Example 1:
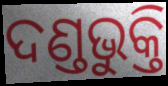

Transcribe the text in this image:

ଦଣ୍ଡଭୁକ୍ତି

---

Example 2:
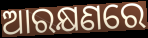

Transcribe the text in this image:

ଆରକ୍ଷଣରେ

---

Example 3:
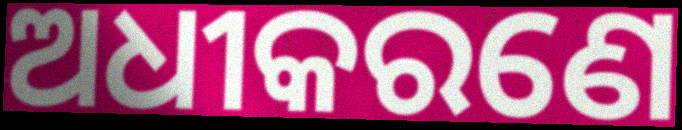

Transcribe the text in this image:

ଅଧୀକରଣେ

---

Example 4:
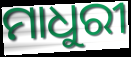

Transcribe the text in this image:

ମାଧୁରୀ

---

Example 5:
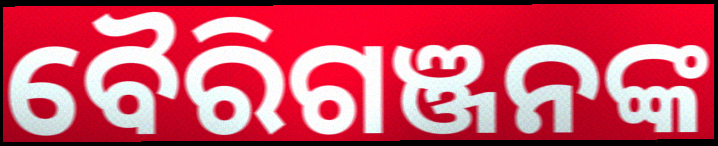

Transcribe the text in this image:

ବୈରିଗଞ୍ଜନଙ୍କ